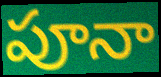
పూనా